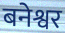
बनेश्वर